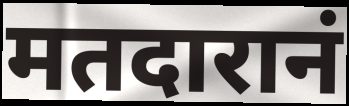
मतदारानं